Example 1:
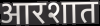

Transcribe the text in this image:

आरशात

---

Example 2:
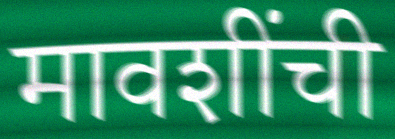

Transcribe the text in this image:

मावशींची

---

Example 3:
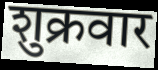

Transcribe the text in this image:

शुक्रवार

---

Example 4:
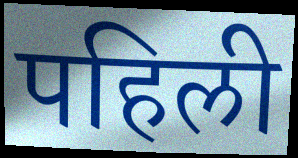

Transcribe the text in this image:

पहिली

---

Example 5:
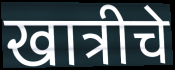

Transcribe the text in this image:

खात्रीचे